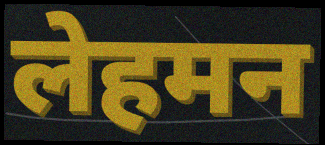
लेहमन